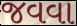
જવવા